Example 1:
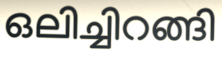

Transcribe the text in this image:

ഒലിച്ചിറങ്ങി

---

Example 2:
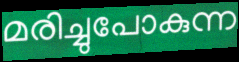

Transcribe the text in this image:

മരിച്ചുപോകുന്ന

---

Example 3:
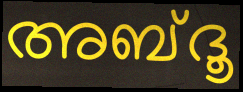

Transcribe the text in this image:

അബ്ദൂ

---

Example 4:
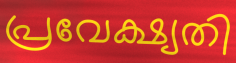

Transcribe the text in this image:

പ്രവേക്ഷ്യതി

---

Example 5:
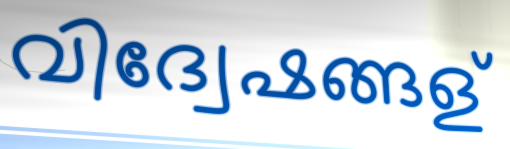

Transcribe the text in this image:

വിദ്വേഷങ്ങള്